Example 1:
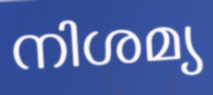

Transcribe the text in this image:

നിശമ്യ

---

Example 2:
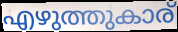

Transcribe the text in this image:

എഴുത്തുകാര്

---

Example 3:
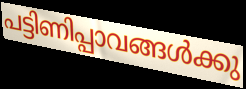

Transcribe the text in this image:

പട്ടിണിപ്പാവങ്ങൾക്കു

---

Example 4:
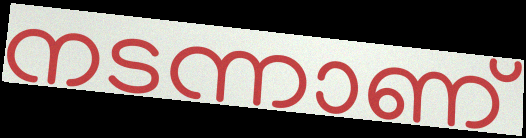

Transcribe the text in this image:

നടന്നാണ്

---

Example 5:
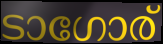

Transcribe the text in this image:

ടാഗോര്